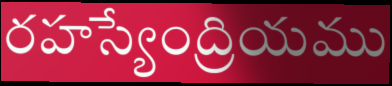
రహస్యేంద్రియము